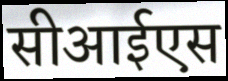
सीआईएस